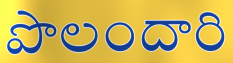
పొలందారి